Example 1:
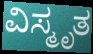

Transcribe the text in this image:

ವಿಸ್ಮೃತ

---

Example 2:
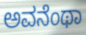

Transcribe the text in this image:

ಅವನೆಂಥಾ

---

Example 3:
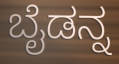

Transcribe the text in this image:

ಬೈಡನ್ನ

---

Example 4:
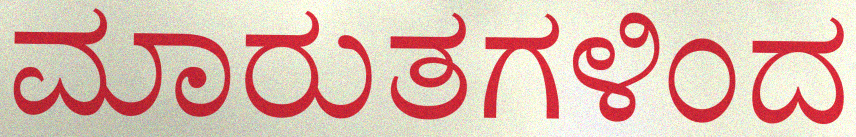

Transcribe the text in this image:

ಮಾರುತಗಳಿಂದ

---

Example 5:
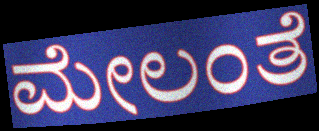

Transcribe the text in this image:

ಮೇಲಂತೆ